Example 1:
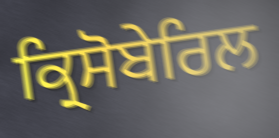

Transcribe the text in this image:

ਕ੍ਰਿਸੋਬੇਰਿਲ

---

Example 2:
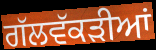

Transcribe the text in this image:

ਗੱਲਵੱਕੜੀਆਂ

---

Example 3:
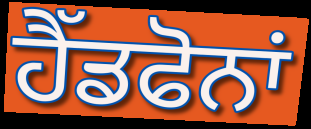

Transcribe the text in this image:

ਹੈੱਡਫੋਨਾਂ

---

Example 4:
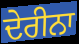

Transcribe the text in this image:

ਦੇਰੀਨਾ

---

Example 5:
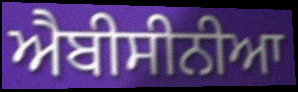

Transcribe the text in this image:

ਐਬੀਸੀਨੀਆ